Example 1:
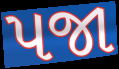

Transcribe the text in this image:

પજા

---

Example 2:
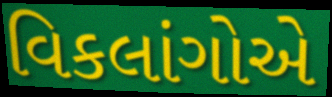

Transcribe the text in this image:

વિકલાંગોએ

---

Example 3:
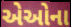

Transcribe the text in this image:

એઓના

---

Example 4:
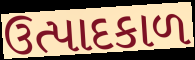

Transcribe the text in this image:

ઉત્પાદકાળ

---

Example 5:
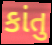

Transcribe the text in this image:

કાંતુ